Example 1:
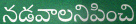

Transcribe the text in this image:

నడవాలనిపించి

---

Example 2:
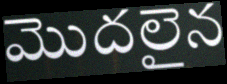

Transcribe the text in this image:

మొదలైన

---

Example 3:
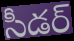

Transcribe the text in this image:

సీడర్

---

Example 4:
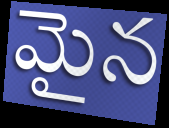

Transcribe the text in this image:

మైన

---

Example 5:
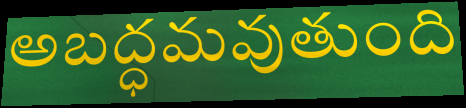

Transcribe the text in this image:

అబద్ధమవుతుంది